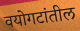
वयोगटांतील